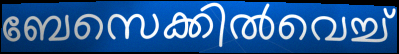
ബേസെക്കിൽവെച്ച്